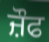
ਜ਼ੌਫ